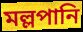
মল্লপানি